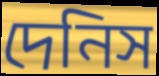
দেনিস